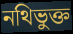
নথিভুক্ত